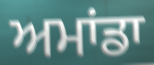
ਅਮਾਂਡਾ